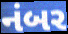
નંબર